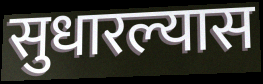
सुधारल्यास